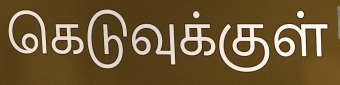
கெடுவுக்குள்